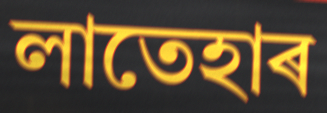
লাতেহাৰ